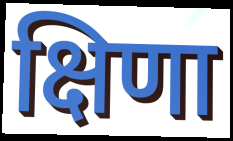
क्षिणा